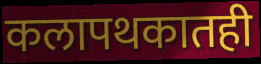
कलापथकातही